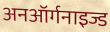
अनऑर्गनाइज्ड